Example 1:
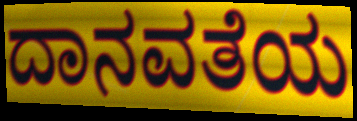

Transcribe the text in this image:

ದಾನವತೆಯ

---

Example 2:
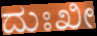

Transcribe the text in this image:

ದುಃಖೀ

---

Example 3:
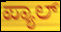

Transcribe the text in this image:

ಪ್ಯಾಲ್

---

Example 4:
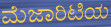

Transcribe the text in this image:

ಮೆಜಾರಿಟಿಯ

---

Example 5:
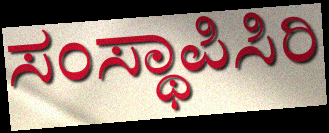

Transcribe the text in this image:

ಸಂಸ್ಥಾಪಿಸಿರಿ